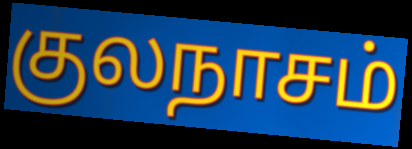
குலநாசம்